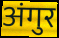
अंगुर